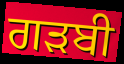
ਗੜਬੀ